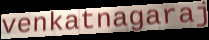
venkatnagaraj